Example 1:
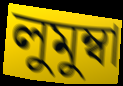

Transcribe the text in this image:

লুমুম্বা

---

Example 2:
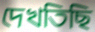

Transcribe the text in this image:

দেখতিছি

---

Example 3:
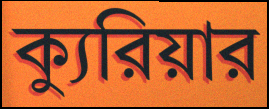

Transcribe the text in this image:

ক্যুরিয়ার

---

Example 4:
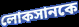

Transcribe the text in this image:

লোকসানকে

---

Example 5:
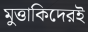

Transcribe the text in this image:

মুত্তাকিদেরই